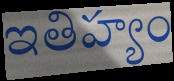
ఇతిహ్యం